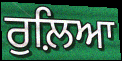
ਰੁਲ਼ਿਆ